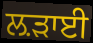
ਲ਼ੜਾਈ